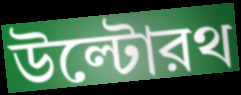
উল্টোরথ